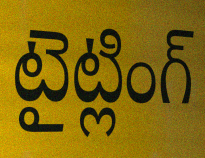
టైట్లింగ్